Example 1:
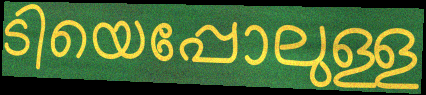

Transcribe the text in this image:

ടിയെപ്പോലുള്ള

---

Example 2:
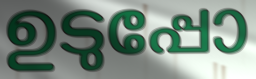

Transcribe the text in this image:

ഉടുപ്പോ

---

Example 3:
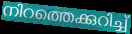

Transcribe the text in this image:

നിറത്തെക്കുറിച്ച്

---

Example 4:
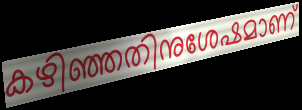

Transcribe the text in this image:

കഴിഞ്ഞതിനുശേഷമാണ്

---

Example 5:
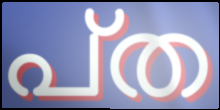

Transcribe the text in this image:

പ്‌ത